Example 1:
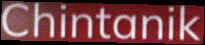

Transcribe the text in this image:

Chintanik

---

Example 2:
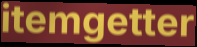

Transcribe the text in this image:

itemgetter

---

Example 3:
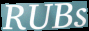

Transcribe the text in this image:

RUBs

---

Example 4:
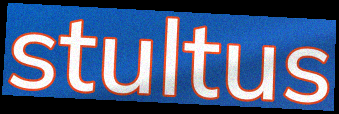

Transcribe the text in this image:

stultus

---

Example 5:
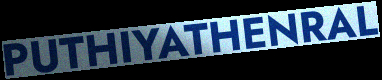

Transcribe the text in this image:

PUTHIYATHENRAL